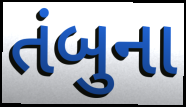
તંબુના